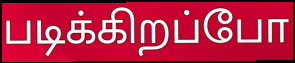
படிக்கிறப்போ